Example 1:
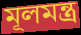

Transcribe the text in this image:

মূলমন্ত্র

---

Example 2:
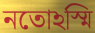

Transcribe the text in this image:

নতোঽস্মি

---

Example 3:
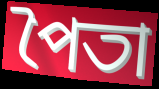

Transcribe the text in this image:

পৈতা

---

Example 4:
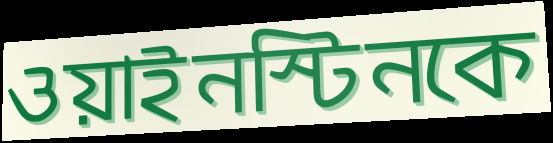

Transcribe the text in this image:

ওয়াইনস্টিনকে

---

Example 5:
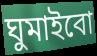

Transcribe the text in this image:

ঘুমাইবো